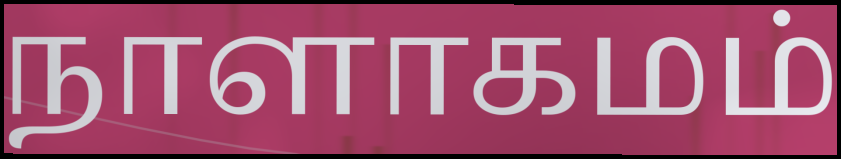
நாளாகமம்